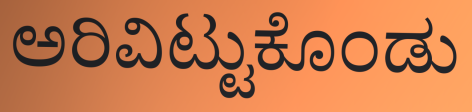
ಅರಿವಿಟ್ಟುಕೊಂಡು